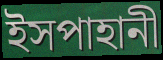
ইসপাহানী